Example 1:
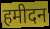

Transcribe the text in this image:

हमीदन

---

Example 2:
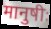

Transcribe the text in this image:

मानुषीः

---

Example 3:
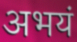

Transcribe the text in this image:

अभयं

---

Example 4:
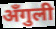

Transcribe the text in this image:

अँगुली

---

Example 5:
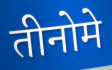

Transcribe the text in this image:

तीनोमे